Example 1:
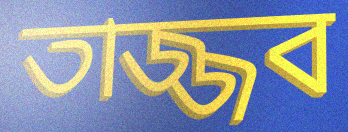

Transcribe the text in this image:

তাজ্জব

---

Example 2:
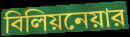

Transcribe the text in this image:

বিলিয়নেয়ার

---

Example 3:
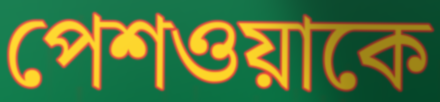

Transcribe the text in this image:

পেশওয়াকে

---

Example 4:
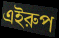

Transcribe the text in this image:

এইরুপ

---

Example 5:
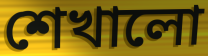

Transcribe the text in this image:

শেখালো